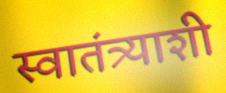
स्वातंत्र्याशी